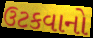
ઉટકવાનો